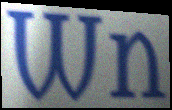
Wn